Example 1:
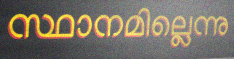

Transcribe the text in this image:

സ്ഥാനമില്ലെന്നു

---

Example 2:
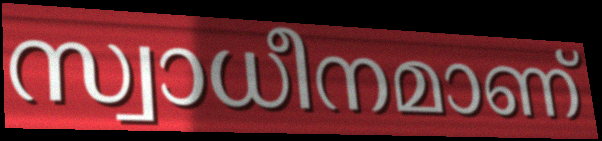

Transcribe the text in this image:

സ്വാധീനമാണ്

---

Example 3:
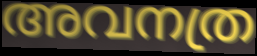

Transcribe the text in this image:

അവനത്ര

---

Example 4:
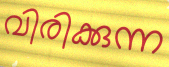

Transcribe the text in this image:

വിരിക്കുന്ന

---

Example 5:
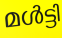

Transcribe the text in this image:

മൾട്ടി